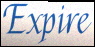
Expire